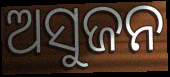
ଅସୁଜନ